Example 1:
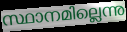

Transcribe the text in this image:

സ്ഥാനമില്ലെന്നു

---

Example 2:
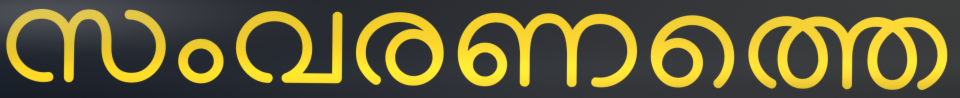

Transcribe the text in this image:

സംവരണത്തെ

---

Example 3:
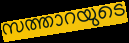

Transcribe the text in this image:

സത്താറയുടെ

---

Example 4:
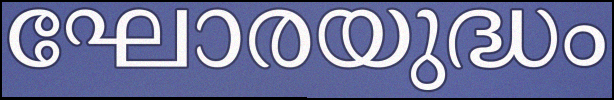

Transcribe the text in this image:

ഘോരയുദ്ധം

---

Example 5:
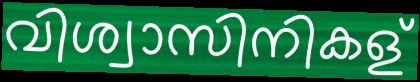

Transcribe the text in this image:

വിശ്വാസിനികള്